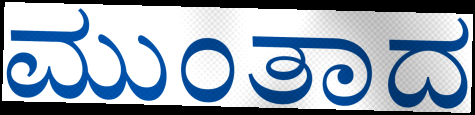
ಮುಂತಾದ